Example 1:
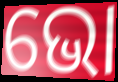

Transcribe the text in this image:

ଭୋ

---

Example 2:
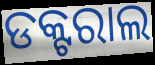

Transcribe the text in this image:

ଡକ୍ଟରାଲ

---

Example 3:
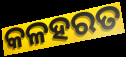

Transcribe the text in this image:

କଳହରତ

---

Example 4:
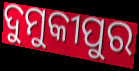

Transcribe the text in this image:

ଦୁମୁକୀପୁର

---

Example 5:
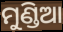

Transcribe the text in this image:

ମୁଣ୍ଡିଆ